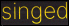
singed